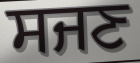
ਸਜਣ